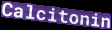
Calcitonin